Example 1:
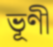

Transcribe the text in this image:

ভূণী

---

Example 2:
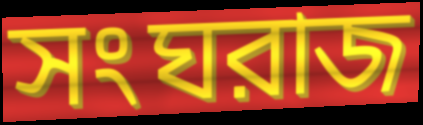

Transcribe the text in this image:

সংঘরাজ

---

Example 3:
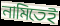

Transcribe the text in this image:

নামিতেই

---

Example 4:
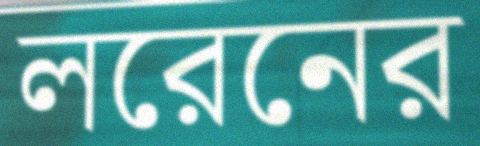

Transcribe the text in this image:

লরেনের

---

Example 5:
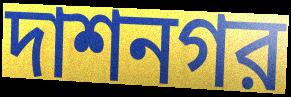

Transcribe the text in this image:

দাশনগর